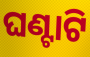
ଘଣ୍ଟାଟି